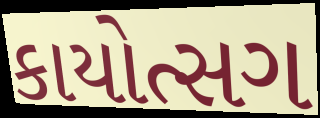
કાયોત્સગ